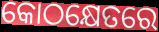
କୋଠକ୍ଷେତରେ